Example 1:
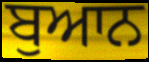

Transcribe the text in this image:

ਬੁਆਨ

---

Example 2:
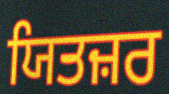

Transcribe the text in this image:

ਯਿਤਜ਼ਰ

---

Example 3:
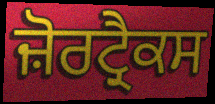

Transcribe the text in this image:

ਜ਼ੋਰਟ੍ਰੈਕਸ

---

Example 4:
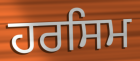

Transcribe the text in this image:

ਹਰਸਿਮ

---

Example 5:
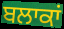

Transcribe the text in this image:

ਬਲਾਕਾਂ